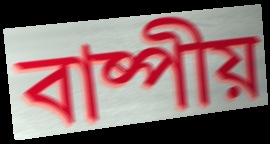
বাষ্পীয়